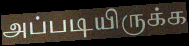
அப்படியிருக்க